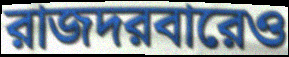
রাজদরবারেও